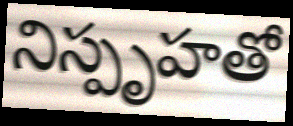
నిస్పృహతో